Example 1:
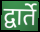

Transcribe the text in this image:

द्वार्ते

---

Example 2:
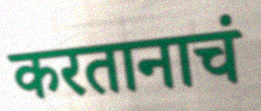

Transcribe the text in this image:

करतानाचं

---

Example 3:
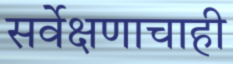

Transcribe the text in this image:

सर्वेक्षणाचाही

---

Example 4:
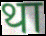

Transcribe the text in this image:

था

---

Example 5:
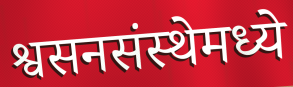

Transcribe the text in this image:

श्वसनसंस्थेमध्ये